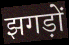
झगड़ों